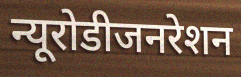
न्यूरोडीजनरेशन